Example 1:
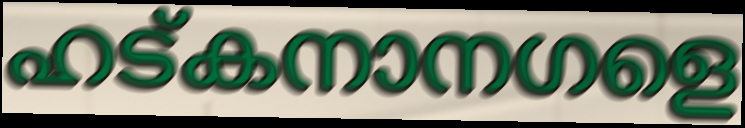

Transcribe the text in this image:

ഹട്കനാനഗളെ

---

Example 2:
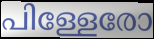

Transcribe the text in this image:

പിള്ളേരോ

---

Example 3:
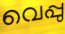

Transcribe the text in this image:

വെപ്പു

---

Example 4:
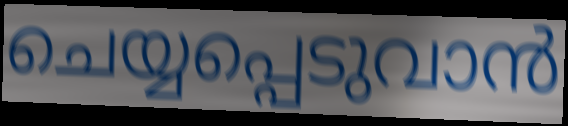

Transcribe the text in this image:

ചെയ്യപ്പെടുവാൻ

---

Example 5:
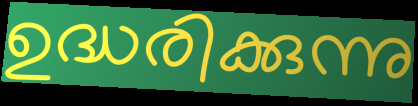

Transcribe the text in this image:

ഉദ്ധരിക്കുന്നു